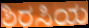
ಶಿರಸಿಯ